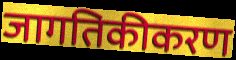
जागतिकीकरण